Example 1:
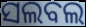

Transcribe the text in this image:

ସଲବଲ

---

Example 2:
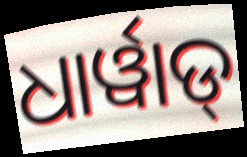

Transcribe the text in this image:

ଧାର୍ୱାଡ୍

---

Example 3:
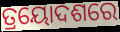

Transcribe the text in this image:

ତ୍ରୟୋଦଶରେ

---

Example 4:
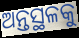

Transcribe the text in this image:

ଅନ୍ତସ୍ଥଳକୁ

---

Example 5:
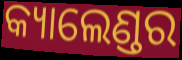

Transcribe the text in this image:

କ୍ୟାଲେଣ୍ଡର